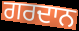
ਗਰਦਾਨ